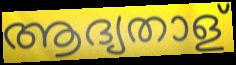
ആദ്യതാള്